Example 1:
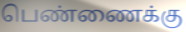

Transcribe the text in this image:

பெண்ணைக்கு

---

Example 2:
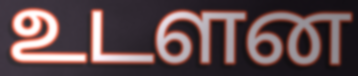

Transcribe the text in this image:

உடளன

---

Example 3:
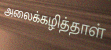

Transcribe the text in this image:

அலைக்கழித்தாள்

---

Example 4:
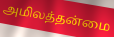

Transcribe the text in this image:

அமிலத்தன்மை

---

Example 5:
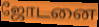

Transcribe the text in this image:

ஜோடனை